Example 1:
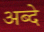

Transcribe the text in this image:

अब्दे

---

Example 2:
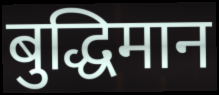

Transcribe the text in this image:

बुद्धिमान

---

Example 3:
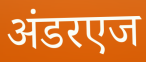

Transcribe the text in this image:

अंडरएज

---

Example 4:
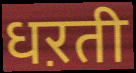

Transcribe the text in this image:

धऱती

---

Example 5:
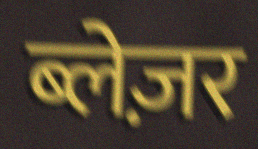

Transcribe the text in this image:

ब्लेज़र